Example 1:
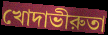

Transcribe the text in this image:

খোদাভীরুতা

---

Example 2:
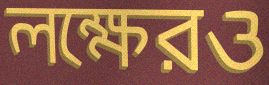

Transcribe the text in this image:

লক্ষেরও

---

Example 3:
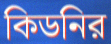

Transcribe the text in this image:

কিডনির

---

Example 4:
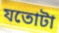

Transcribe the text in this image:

যতোটা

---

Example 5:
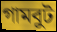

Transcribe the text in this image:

গামবুট